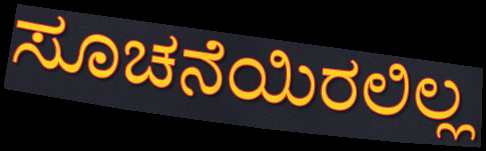
ಸೂಚನೆಯಿರಲಿಲ್ಲ